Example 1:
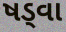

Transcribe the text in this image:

ષડ્વા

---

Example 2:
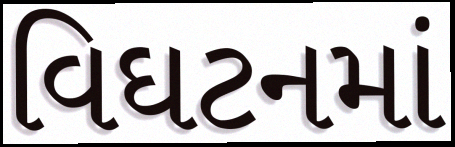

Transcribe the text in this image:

વિઘટનમાં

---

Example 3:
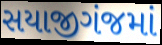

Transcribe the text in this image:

સયાજીગંજમાં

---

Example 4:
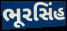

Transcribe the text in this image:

ભૂરસિંહ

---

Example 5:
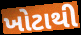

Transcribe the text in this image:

ખોટાથી